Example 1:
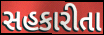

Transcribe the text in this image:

સહકારીતા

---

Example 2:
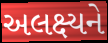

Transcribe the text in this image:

અલક્ષ્યને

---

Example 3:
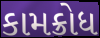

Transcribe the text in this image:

કામક્રોધ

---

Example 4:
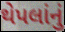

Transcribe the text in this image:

થેપલાંનું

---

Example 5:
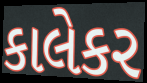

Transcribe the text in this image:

કાલેકર